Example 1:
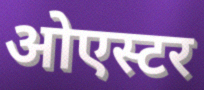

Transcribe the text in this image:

ओएस्टर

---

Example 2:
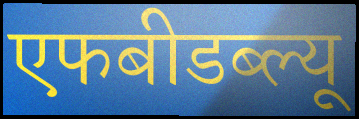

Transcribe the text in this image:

एफबीडब्ल्यू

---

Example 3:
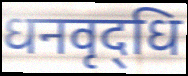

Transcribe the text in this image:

धनवृद्धि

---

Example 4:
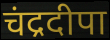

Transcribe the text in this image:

चंद्रदीपा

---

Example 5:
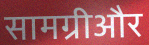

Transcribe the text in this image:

सामग्रीऔर